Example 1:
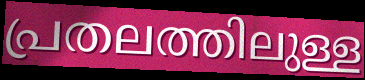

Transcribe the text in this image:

പ്രതലത്തിലുള്ള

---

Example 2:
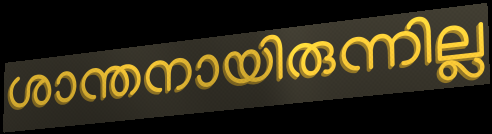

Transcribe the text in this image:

ശാന്തനായിരുന്നില്ല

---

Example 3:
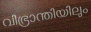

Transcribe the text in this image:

വിഭ്രാന്തിയിലും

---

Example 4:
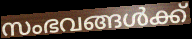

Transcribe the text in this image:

സംഭവങ്ങൾക്ക്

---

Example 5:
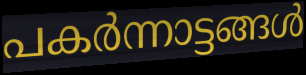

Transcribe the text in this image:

പകർന്നാട്ടങ്ങൾ